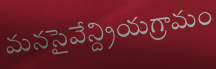
మనసైవేన్ద్రియగ్రామం